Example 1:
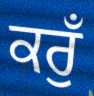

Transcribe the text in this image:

ਕਰੁਁ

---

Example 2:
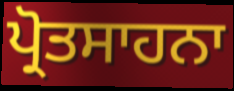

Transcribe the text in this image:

ਪ੍ਰੋਤਸਾਹਨਾ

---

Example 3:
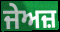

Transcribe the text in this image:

ਜੇਅਜ਼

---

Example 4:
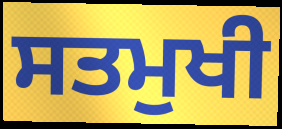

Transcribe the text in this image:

ਸਤਮੁਖੀ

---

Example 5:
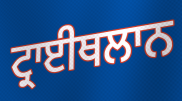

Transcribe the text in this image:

ਟ੍ਰਾਈਥਲਾਨ